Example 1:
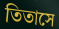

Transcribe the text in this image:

তিতাসে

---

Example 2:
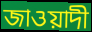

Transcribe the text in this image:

জাওয়াদী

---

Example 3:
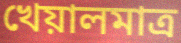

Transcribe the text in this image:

খেয়ালমাত্র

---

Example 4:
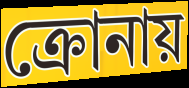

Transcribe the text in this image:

ক্রোনায়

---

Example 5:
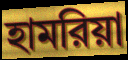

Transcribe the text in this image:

হামরিয়া